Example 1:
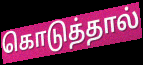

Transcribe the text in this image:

கொடுத்தால்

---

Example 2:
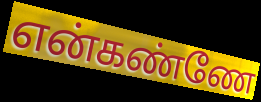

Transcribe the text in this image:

என்கண்ணே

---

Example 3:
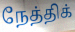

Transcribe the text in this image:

நேத்திக்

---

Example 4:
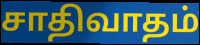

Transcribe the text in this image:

சாதிவாதம்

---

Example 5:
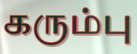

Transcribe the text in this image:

கரும்பு